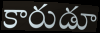
కారుడూ